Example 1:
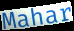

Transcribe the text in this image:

Mahar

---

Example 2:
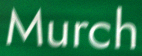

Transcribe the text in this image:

Murch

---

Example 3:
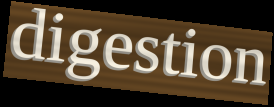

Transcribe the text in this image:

digestion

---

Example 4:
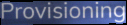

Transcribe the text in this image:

Provisioning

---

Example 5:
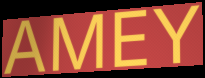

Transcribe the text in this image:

AMEY